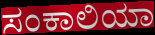
ಸಂಕಾಲಿಯಾ